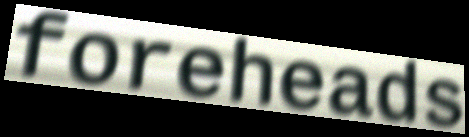
foreheads